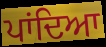
ਪਾਂਦਿਆ